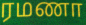
ரமணா